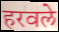
हरवले